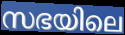
സഭയിലെ